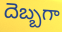
దెబ్బగా